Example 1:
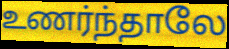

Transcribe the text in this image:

உணர்ந்தாலே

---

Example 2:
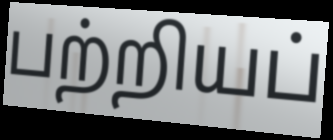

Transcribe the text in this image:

பற்றியப்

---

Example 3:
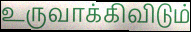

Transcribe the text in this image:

உருவாக்கிவிடும்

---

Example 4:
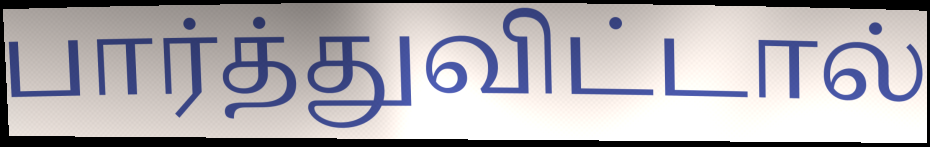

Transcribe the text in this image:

பார்த்துவிட்டால்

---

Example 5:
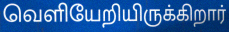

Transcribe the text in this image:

வெளியேறியிருக்கிறார்